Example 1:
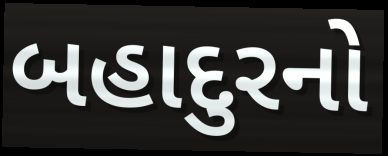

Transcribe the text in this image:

બહાદુરનો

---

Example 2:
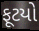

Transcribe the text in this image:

ફૂટયો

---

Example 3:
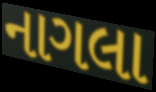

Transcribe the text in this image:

નાગલા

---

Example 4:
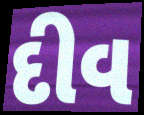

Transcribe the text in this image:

દીવ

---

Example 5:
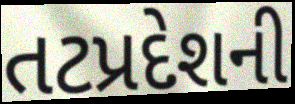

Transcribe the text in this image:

તટપ્રદેશની